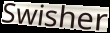
Swisher